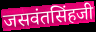
जसवंतसिंहजी